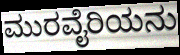
ಮುರವೈರಿಯನು